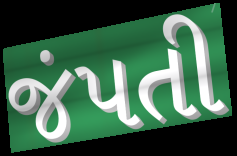
જંપતી